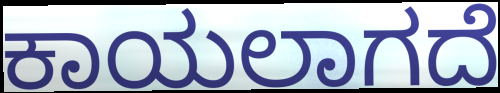
ಕಾಯಲಾಗದೆ